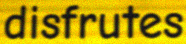
disfrutes